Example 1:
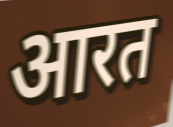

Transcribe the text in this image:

आरत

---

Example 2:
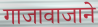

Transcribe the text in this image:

गाजावाजाने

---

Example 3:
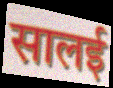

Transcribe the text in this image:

सालई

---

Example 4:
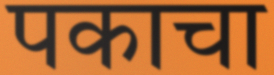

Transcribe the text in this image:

पकाचा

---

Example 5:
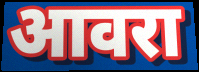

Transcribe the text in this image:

आवरा